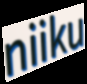
niiku